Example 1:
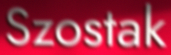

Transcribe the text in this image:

Szostak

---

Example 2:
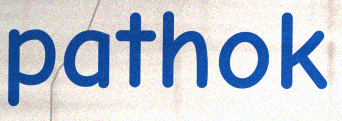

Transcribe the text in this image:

pathok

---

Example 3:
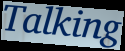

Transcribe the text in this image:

Talking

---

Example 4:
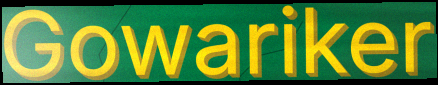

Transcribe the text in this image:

Gowariker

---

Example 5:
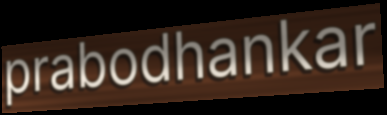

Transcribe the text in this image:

prabodhankar